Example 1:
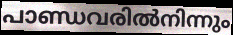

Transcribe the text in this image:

പാണ്ഡവരിൽനിന്നും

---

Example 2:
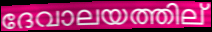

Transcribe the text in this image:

ദേവാലയത്തില്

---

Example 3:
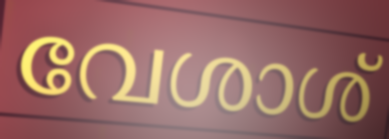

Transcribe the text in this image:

വേശാശ്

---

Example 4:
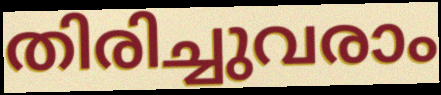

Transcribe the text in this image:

തിരിച്ചുവരാം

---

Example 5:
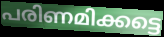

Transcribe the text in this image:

പരിണമിക്കട്ടെ